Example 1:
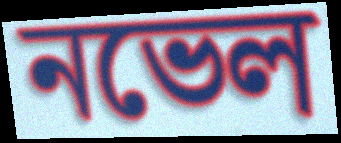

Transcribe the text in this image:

নভেল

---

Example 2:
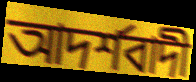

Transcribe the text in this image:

আদর্শবাদী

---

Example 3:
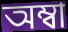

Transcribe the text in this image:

অম্বা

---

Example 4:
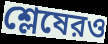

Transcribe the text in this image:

শ্লেষেরও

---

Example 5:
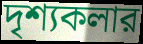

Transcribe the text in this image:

দৃশ্যকলার